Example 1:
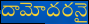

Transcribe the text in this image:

దామోదరనై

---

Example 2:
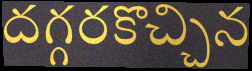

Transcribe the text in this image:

దగ్గరకొచ్చిన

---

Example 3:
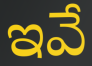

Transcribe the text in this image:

ఇవే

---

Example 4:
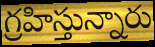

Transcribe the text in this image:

గ్రహిస్తున్నారు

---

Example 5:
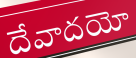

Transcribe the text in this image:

దేవాదయో